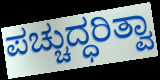
ಪಚ್ಚುದ್ಧರಿತ್ವಾ